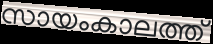
സായംകാലത്ത്